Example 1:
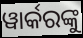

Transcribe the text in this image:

ୱାର୍କରଙ୍କୁ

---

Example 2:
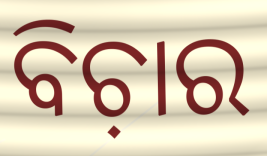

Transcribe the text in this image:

ବିଚ଼ାର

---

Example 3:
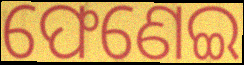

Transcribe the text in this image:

ଫେଣେଇ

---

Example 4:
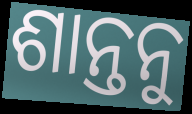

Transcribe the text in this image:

ଶାନ୍ତନୁ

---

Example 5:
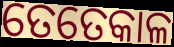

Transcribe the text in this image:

ତେତେକାଳ